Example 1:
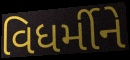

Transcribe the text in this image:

વિધર્મીને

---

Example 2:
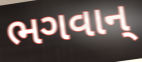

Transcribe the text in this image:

ભગવાન્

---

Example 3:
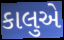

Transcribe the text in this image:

કાલુએ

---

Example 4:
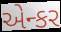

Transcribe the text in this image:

એન્કર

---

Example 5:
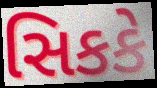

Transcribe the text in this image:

સિકકે